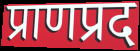
प्राणप्रद